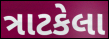
ત્રાટકેલા